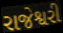
રાજેશ્વરી